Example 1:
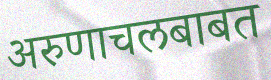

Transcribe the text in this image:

अरुणाचलबाबत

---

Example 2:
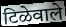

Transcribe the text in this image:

टिळेवाले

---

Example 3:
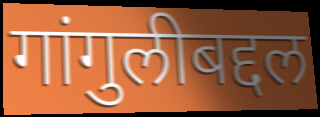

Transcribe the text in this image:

गांगुलीबद्दल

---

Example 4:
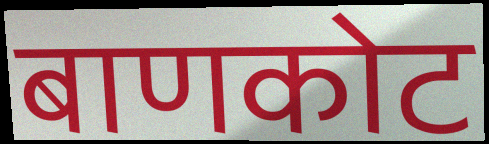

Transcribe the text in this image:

बाणकोट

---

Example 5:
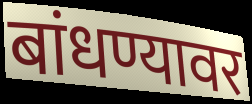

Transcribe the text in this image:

बांधण्यावर